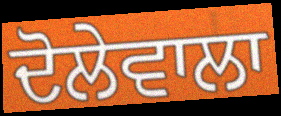
ਦੋਲੇਵਾਲਾ